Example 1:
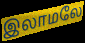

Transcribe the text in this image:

இலாமலே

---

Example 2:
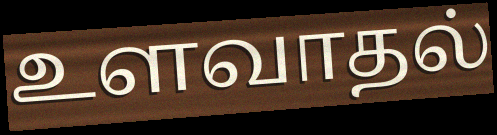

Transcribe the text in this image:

உளவாதல்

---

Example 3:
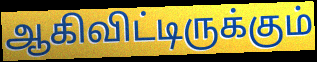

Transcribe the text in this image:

ஆகிவிட்டிருக்கும்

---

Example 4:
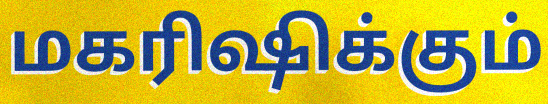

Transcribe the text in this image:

மகரிஷிக்கும்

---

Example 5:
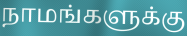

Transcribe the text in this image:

நாமங்களுக்கு